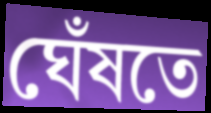
ঘেঁষতে